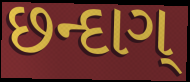
છન્દાગ્